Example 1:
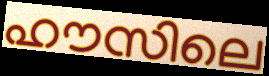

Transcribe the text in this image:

ഹൗസിലെ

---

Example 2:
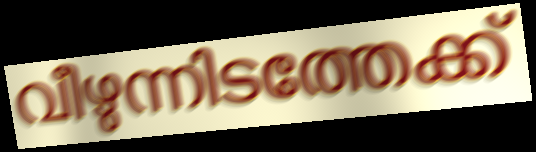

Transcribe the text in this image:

വീഴുന്നിടത്തേക്ക്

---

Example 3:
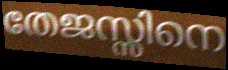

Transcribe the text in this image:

തേജസ്സിനെ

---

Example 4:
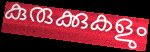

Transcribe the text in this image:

കുരുക്കുകളും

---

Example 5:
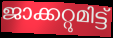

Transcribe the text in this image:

ജാക്കറ്റുമിട്ട്